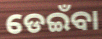
ଡେଇଁବା